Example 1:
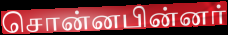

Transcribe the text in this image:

சொன்னபின்னர்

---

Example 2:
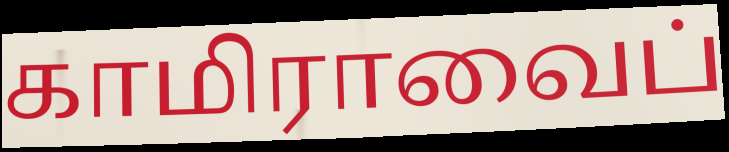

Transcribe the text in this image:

காமிராவைப்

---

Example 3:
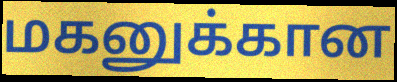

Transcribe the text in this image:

மகனுக்கான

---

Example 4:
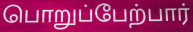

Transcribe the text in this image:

பொறுப்பேற்பார்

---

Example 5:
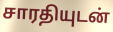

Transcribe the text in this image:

சாரதியுடன்